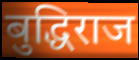
बुद्धिराज